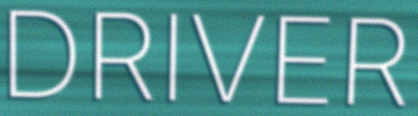
DRIVER